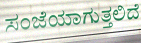
ಸಂಜೆಯಾಗುತ್ತಲಿದೆ